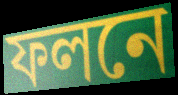
ফলনে